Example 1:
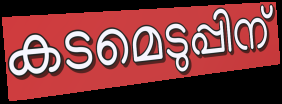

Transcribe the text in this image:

കടമെടുപ്പിന്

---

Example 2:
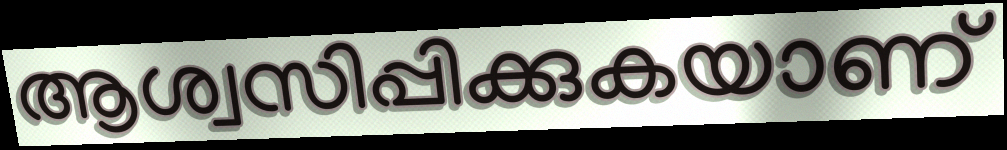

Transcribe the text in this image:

ആശ്വസിപ്പിക്കുകയാണ്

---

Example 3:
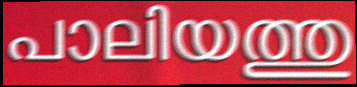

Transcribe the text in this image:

പാലിയത്തു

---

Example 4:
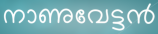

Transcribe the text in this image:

നാണുവേട്ടൻ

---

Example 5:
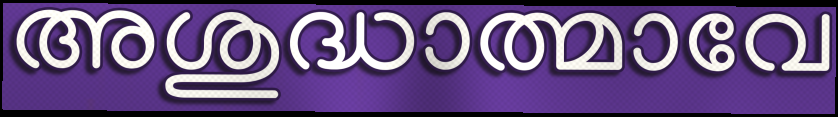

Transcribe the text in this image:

അശുദ്ധാത്മാവേ